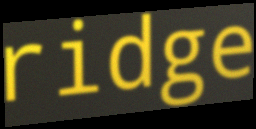
ridge